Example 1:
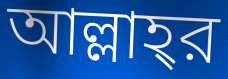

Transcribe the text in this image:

আল্লাহ্‌র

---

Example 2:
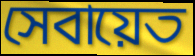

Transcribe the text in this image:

সেবায়েত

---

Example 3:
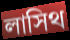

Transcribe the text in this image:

লাসিথ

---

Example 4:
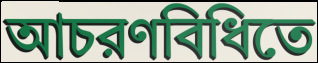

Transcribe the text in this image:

আচরণবিধিতে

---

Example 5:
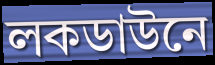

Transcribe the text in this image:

লকডাউনে